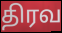
திரவ